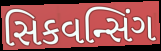
સિકવન્સિંગ